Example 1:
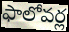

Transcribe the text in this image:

ఫాలోవర్ల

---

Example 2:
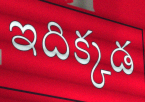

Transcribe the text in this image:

ఇదిక్కడ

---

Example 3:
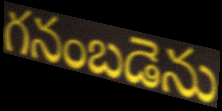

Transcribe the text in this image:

గనంబడెను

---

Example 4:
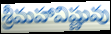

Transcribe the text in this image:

శ్రీమహావిష్ణువు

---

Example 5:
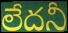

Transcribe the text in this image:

లేదనీ